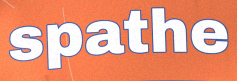
spathe